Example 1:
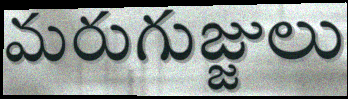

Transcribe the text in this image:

మరుగుజ్జులు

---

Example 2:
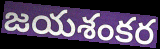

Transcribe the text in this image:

జయశంకర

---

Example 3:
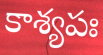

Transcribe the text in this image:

కాశ్యపః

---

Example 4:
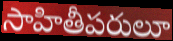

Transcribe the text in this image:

సాహితీపరులూ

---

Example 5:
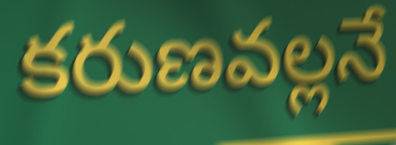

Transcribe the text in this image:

కరుణవల్లనే